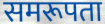
समरूपता